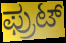
ಫ್ರುಟ್